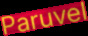
Paruvel